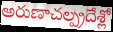
అరుణాచల్ప్రదేశ్లో